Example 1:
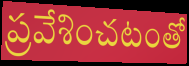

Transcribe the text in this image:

ప్రవేశించటంతో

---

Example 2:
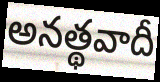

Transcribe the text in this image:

అనత్థవాదీ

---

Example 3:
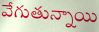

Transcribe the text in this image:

వేగుతున్నాయి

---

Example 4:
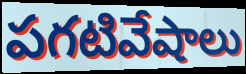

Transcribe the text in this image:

పగటివేషాలు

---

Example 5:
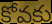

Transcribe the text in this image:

కోవకు